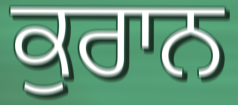
ਕੁਰਾਨ